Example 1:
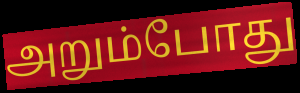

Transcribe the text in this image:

அறும்போது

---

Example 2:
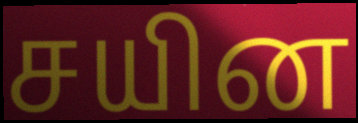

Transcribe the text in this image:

சயின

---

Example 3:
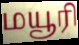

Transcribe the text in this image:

மயூரி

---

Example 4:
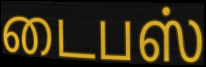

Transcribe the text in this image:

டைபஸ்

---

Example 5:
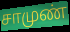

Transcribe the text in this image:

சாமுண்